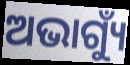
ଅଭାଗ୍ୟୁଁ